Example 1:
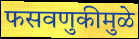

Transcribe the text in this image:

फसवणुकीमुळे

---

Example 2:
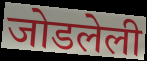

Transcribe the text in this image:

जोडलेली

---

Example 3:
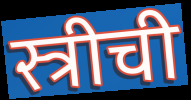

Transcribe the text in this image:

स्त्रीची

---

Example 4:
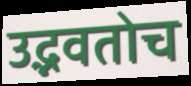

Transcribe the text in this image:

उद्भवतोच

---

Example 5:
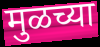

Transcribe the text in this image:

मुळच्या